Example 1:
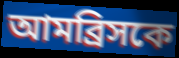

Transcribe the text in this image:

আমব্রিসকে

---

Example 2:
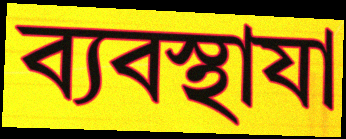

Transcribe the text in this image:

ব্যবস্থাযা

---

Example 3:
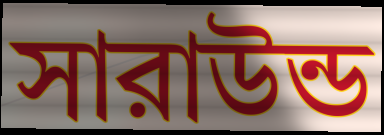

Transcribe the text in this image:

সারাউন্ড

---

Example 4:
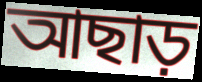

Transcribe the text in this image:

আছাড়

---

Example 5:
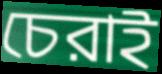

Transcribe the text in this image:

চেরাই